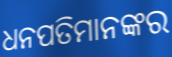
ଧନପତିମାନଙ୍କର